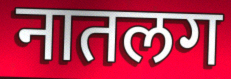
नातलग